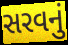
સરવનું